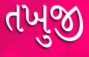
તખુજી